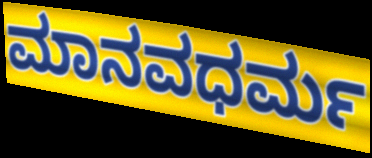
ಮಾನವಧರ್ಮ